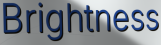
Brightness